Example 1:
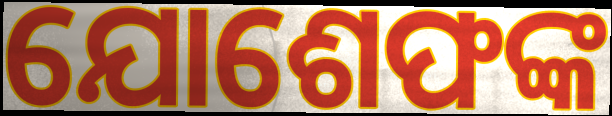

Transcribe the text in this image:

ଯୋଶେଫଙ୍କ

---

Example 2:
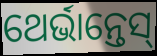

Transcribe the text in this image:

ଥେର୍ଭାନ୍ତେସ୍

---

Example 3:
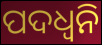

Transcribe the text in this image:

ପଦଧ୍ଵନି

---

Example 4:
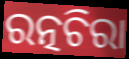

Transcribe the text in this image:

ରତ୍ନଚିରା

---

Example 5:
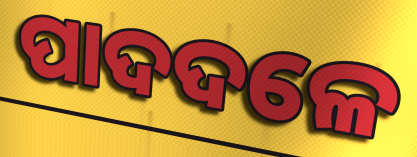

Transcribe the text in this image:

ପାଦଦଳେ